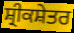
ਸ਼੍ਰੀਕਸ਼ੇਤਰ